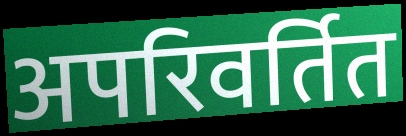
अपरिवर्तित